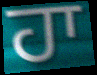
ਹਾ